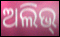
ଅଲିଭ୍